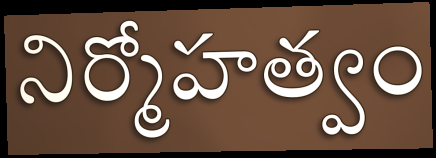
నిర్మోహత్వం